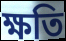
ক্ষতি